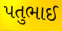
પતુભાઈ